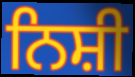
ਨਿਸ਼ੀ